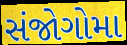
સંજોગોમા